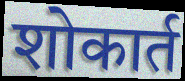
शोकार्त